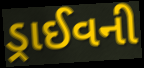
ડ્રાઈવની